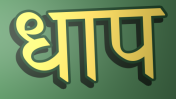
धाप